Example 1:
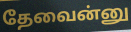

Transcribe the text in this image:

தேவைன்னு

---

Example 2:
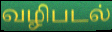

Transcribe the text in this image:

வழிபடல்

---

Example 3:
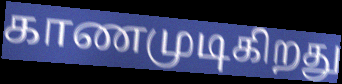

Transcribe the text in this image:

காணமுடிகிறது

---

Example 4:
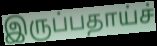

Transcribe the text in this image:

இருப்பதாய்ச்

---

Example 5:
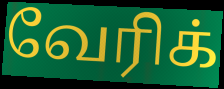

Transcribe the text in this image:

வேரிக்